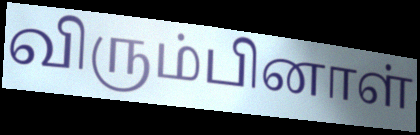
விரும்பினாள்